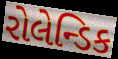
રોલેન્ડિક